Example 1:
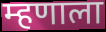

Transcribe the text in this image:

म्हणाला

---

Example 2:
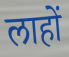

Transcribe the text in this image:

लाहों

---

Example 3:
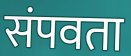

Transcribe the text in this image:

संपवता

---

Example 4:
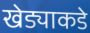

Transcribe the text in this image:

खेड्याकडे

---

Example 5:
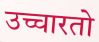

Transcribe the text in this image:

उच्चारतो